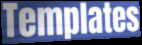
Templates